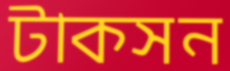
টাকসন